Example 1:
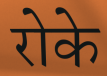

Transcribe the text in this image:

रोके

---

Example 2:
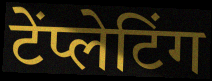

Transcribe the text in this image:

टेंप्लेटिंग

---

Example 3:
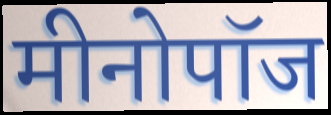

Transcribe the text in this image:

मीनोपॉज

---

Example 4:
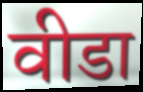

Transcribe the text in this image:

वीडा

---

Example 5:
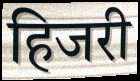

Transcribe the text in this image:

हिजरी